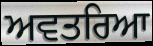
ਅਵਤਰਿਆ